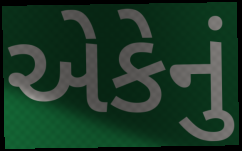
એકેનું